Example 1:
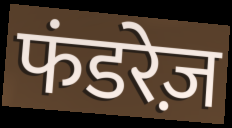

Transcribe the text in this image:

फंडरेज़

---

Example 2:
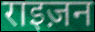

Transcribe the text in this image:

राइज़न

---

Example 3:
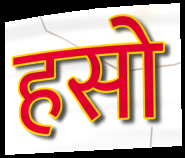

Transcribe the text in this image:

हसो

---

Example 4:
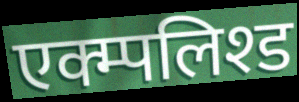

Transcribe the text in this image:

एक्म्पलिश्ड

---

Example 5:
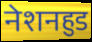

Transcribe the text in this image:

नेशनहुड